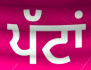
ਪੱਟਾਂ